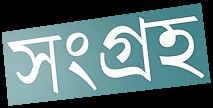
সংগ্রহ